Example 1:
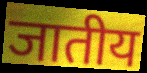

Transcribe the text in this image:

जातीय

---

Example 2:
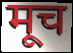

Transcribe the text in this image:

मूच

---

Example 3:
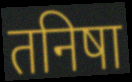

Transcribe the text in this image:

तनिषा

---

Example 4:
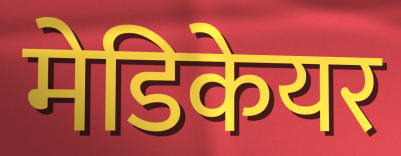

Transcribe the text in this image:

मेडिकेयर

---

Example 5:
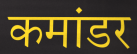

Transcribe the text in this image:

कमांडर